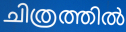
ചിത്രത്തിൽ